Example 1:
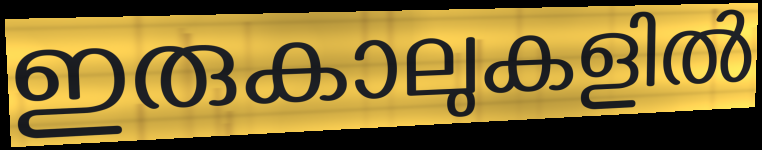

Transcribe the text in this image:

ഇരുകാലുകളിൽ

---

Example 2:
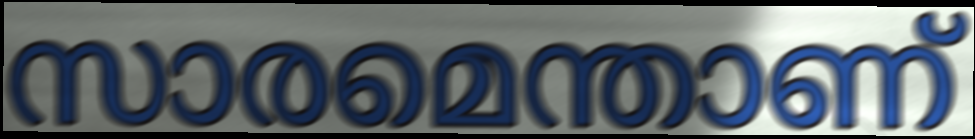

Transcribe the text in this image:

സാരമെന്താണ്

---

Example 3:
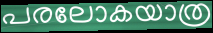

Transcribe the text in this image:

പരലോകയാത്ര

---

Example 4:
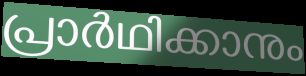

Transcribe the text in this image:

പ്രാർഥിക്കാനും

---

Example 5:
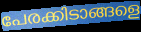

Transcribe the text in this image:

പേരക്കിടാങ്ങളെ